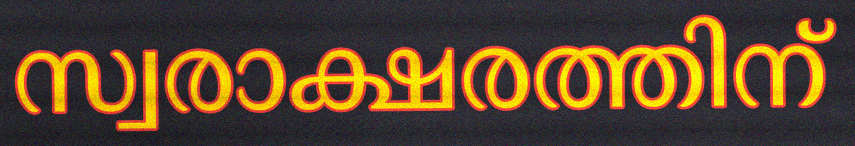
സ്വരാക്ഷരത്തിന്